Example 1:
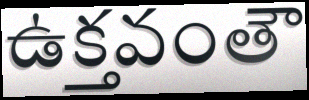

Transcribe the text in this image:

ఉక్తవంతౌ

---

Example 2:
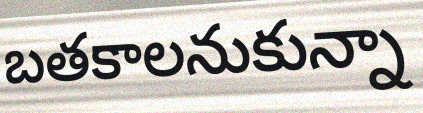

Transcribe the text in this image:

బతకాలనుకున్నా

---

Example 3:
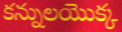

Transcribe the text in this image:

కన్నులయొక్క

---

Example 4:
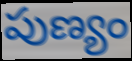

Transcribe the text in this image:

పుణ్యం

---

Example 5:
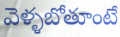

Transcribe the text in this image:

వెళ్ళబోతూంటే